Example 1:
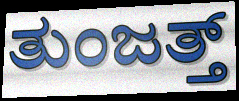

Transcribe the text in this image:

ತುಂಜತ್ತ್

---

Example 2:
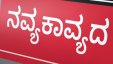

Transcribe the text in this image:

ನವ್ಯಕಾವ್ಯದ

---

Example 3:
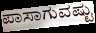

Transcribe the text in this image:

ಪಾಸಾಗುವಷ್ಟು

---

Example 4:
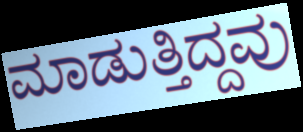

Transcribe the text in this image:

ಮಾಡುತ್ತಿದ್ದವು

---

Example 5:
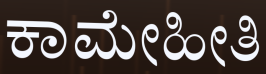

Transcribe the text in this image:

ಕಾಮೇಹೀತಿ